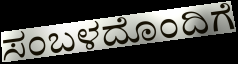
ಸಂಬಳದೊಂದಿಗೆ